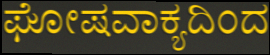
ಘೋಷವಾಕ್ಯದಿಂದ